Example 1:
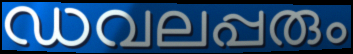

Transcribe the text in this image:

ഡവലപ്പരും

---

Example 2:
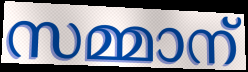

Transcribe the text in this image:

സമ്മാന്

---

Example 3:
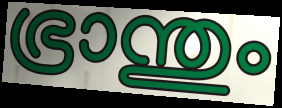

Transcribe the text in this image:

ഭ്രാന്തും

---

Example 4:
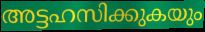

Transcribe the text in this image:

അട്ടഹസിക്കുകയും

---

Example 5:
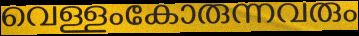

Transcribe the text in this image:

വെള്ളംകോരുന്നവരും